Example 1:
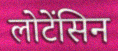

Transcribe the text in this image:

लोटेंसिन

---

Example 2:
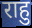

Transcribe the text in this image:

राहु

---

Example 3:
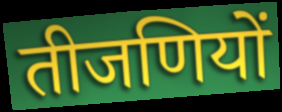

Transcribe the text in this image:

तीजणियों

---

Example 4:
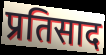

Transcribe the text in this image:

प्रतिसाद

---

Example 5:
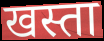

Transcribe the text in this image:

खस्ता